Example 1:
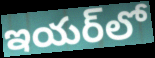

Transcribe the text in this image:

ఇయర్‌లో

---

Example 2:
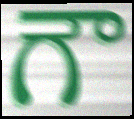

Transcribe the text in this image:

గౌ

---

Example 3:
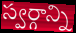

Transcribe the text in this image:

స్వర్గాన్ని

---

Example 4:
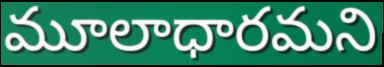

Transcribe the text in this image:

మూలాధారమని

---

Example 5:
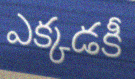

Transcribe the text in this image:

ఎక్కడకీ